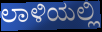
ಲಾಳಿಯಲ್ಲಿ